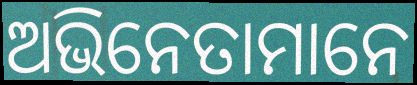
ଅଭିନେତାମାନେ